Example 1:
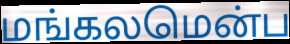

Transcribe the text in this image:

மங்கலமென்ப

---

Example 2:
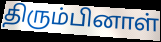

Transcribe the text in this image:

திரும்பினாள்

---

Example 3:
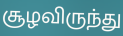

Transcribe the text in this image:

சூழவிருந்து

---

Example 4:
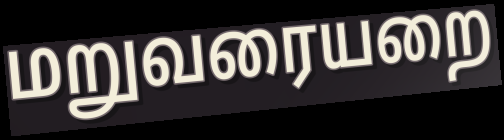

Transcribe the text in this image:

மறுவரையறை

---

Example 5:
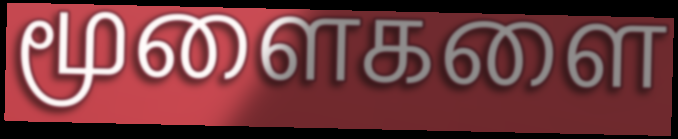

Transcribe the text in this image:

மூளைகளை